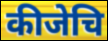
कीजेचि